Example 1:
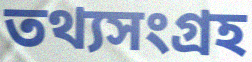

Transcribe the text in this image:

তথ্যসংগ্ৰহ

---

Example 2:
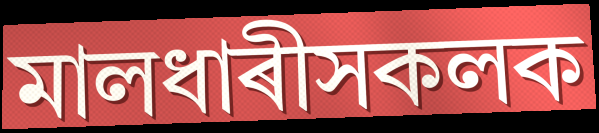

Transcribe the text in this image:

মালধাৰীসকলক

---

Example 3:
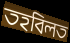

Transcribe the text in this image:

তহবিলত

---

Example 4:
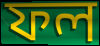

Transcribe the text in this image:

ফল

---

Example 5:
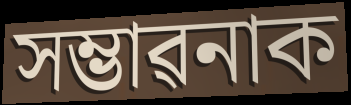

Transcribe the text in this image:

সম্ভাৱনাক